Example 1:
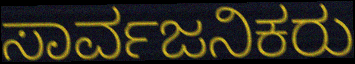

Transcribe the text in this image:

ಸಾರ್ವಜನಿಕರು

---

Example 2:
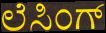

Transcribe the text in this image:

ಲೆಸಿಂಗ್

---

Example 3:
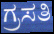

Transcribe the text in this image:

ಗ್ರಸತಿ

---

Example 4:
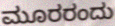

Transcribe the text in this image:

ಮೂರರಂದು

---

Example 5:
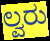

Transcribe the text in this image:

ಲ್ವರು